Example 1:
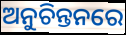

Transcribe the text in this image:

ଅନୁଚିନ୍ତନରେ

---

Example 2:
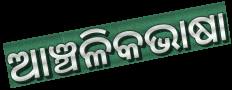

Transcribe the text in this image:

ଆଞ୍ଚଳିକଭାଷା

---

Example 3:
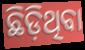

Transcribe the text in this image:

ଛିଡ଼ିଥିବା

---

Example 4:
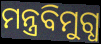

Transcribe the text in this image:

ମନ୍ତ୍ରବିମୁଗ୍ଧ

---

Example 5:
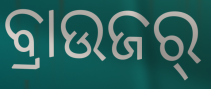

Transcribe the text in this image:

ବ୍ରାଉଜର୍